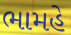
ભામહે